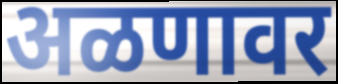
अळणावर